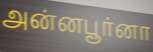
அன்னபூர்னா